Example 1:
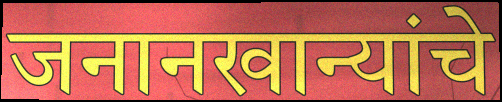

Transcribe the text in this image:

जनानखान्यांचे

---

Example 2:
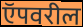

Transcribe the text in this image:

ऍपवरील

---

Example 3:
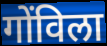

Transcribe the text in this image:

गोंविला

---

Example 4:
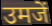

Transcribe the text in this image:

उमजें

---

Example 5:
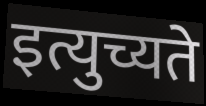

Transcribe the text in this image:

इत्युच्यते